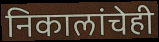
निकालांचेही